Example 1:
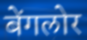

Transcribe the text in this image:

बेंगलोर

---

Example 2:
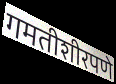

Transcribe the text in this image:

गमतीशीरपणे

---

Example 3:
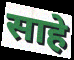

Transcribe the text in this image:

साहे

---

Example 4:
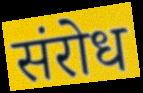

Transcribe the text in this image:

संरोध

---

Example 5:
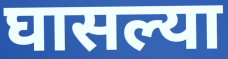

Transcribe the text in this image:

घासल्या